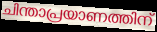
ചിന്താപ്രയാണത്തിന്